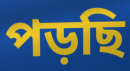
পড়ছি